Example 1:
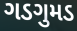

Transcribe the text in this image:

ગડગુમડ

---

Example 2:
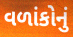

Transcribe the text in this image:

વળાંકોનું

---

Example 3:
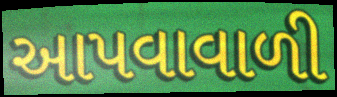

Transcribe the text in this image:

આપવાવાળી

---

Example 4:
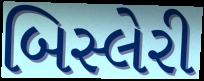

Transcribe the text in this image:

બિસ્લેરી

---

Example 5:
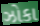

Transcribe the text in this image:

ઝોકા